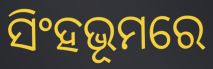
ସିଂହଭୂମରେ